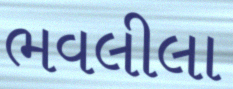
ભવલીલા